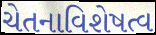
ચેતનાવિશેષત્વ